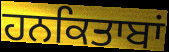
ਹਨਕਿਤਾਬਾਂ